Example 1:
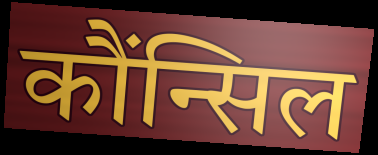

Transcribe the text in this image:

कौंन्सिल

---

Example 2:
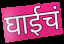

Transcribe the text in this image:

घाईचं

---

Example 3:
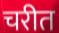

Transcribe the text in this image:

चरीत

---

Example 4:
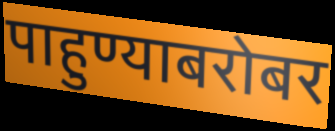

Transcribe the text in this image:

पाहुण्याबरोबर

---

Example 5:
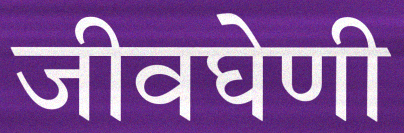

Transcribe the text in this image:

जीवघेणी